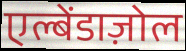
एल्बेंडाज़ोल